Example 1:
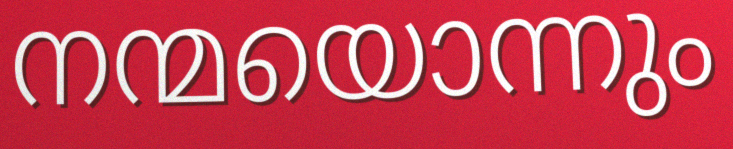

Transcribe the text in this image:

നന്മയൊന്നും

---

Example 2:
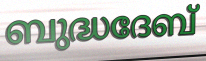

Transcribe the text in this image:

ബുദ്ധദേബ്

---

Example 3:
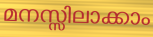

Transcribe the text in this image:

മനസ്സിലാക്കാം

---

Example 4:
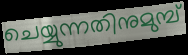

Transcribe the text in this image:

ചെയ്യുന്നതിനുമുമ്പ്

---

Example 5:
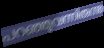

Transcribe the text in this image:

പറഞ്ഞുവന്നിരുന്നു